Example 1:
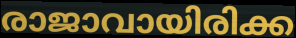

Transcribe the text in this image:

രാജാവായിരിക്ക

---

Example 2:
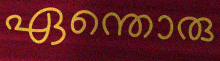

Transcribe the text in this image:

ഏന്തൊരു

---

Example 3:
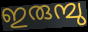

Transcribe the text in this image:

ഇരുമ്പു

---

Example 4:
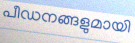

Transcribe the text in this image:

പീഡനങ്ങളുമായി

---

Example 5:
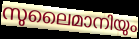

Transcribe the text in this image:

സുലൈമാനിയും